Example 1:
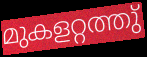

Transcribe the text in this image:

മുകളറ്റത്തു്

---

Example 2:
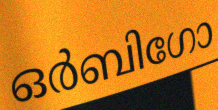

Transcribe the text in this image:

ഒർബിഗോ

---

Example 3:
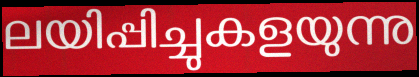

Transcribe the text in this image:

ലയിപ്പിച്ചുകളയുന്നു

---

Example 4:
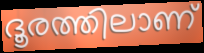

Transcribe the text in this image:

ദൂരത്തിലാണ്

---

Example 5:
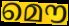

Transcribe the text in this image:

മൌ